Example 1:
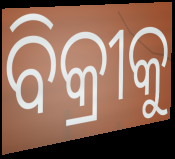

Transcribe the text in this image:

ବିକ୍ରୀକୁ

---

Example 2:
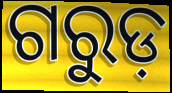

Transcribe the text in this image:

ଗରୁଡ଼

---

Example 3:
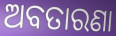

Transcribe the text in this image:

ଅବତାରଣା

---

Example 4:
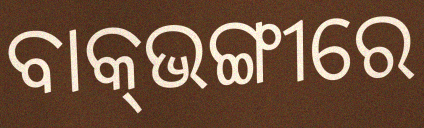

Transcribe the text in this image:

ବାକ୍‍ଭଙ୍ଗୀରେ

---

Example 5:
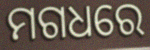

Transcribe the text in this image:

ମଗଧରେ